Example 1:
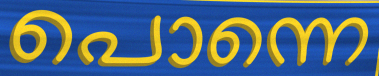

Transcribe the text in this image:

പൊന്നെ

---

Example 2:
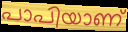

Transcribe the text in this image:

പാപിയാണ്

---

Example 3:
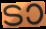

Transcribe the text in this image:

ടാ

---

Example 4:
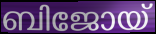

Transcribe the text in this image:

ബിജോയ്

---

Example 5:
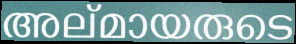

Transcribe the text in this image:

അല്മായരുടെ